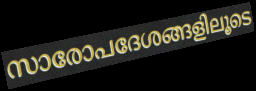
സാരോപദേശങ്ങളിലൂടെ